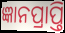
ଜ୍ଞାନପ୍ରାପ୍ତି